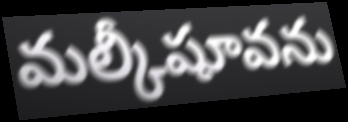
మల్కీషూవను